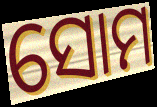
ସୋମ